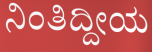
ನಿಂತಿದ್ದೀಯ